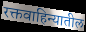
रक्तवाहिन्यातील